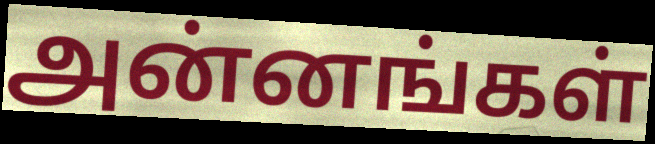
அன்னங்கள்